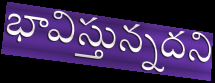
భావిస్తున్నదని